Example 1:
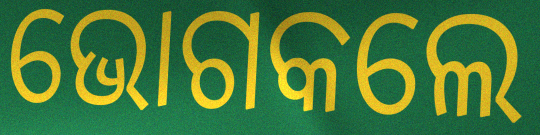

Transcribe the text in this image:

ଭୋଗକଲେ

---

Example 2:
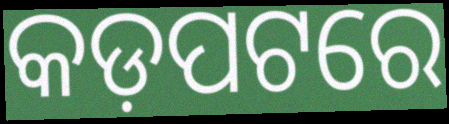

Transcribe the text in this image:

କଡ଼ପଟରେ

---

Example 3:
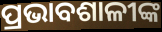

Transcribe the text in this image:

ପ୍ରଭାବଶାଳୀଙ୍କ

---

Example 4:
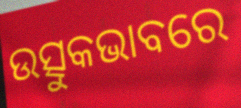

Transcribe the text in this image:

ଉତ୍ସୁକଭାବରେ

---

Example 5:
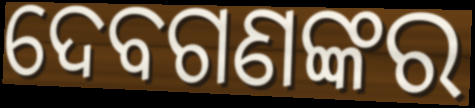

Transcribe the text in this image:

ଦେବଗଣଙ୍କର